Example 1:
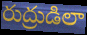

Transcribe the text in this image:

రుద్రుడిలా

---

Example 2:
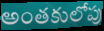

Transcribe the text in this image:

అంతకులోపు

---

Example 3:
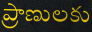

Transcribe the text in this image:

ప్రాణులకు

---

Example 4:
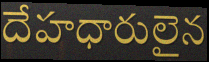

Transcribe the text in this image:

దేహధారులైన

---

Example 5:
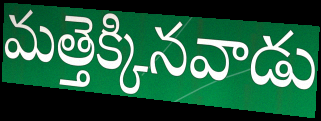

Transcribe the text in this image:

మత్తెక్కినవాడు